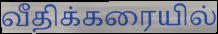
வீதிக்கரையில்